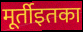
मूर्तीइतका